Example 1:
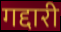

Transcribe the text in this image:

गद्दारी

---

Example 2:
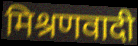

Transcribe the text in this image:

मिश्रणवादी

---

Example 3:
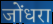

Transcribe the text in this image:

जोंधरा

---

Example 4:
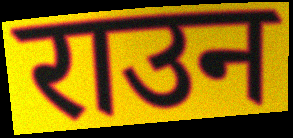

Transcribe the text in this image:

राउन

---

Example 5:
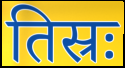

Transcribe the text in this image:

तिस्रः